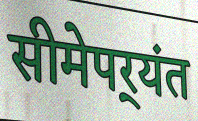
सीमेपर्यंत